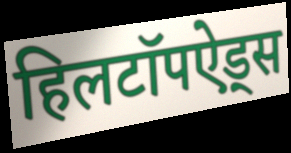
हिलटॉपऐड्स